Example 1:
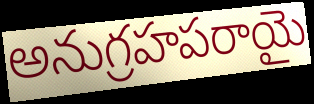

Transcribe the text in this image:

అనుగ్రహపరాయై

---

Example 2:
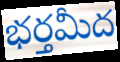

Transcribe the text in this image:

భర్తమీద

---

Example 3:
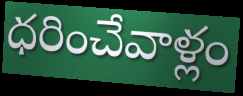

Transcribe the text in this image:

ధరించేవాళ్లం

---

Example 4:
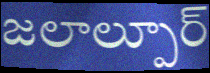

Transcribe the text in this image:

జలాల్పూర్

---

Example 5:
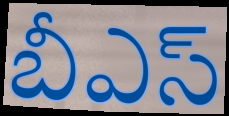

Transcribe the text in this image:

బీఎస్